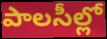
పాలసీల్లో